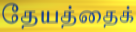
தேயத்தைக்